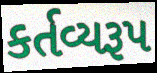
કર્તવ્યરૂપ